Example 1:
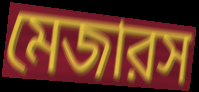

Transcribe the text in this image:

মেজারস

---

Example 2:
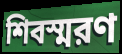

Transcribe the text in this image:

শিবস্মরণ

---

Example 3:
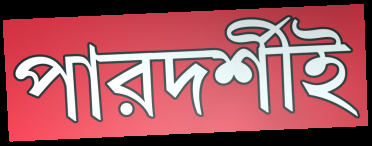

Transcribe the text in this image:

পারদর্শীই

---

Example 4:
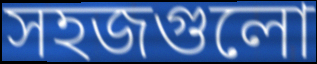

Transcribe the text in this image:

সহজগুলো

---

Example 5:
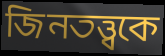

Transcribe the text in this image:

জিনতত্ত্বকে